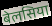
बेलसिया